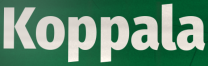
Koppala